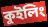
কুইলিং